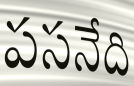
పసనేది